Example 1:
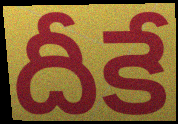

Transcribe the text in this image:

దీకే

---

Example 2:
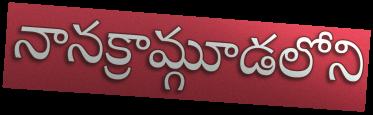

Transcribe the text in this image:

నానక్రామ్గూడలోని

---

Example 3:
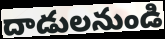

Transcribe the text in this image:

దాడులనుండి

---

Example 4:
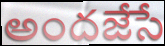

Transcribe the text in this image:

అందజేసే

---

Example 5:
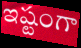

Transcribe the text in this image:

ఇష్టంగా